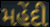
મહેંદી